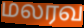
மலரவ